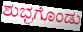
ಶುಭ್ರಗೊಂಡು